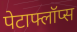
पेटाफ्लॉप्स